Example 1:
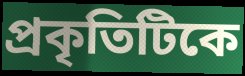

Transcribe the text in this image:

প্রকৃতিটিকে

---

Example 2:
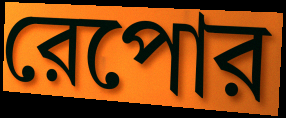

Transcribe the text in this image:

রেপোর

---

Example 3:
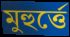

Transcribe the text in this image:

মুহুর্ত্তে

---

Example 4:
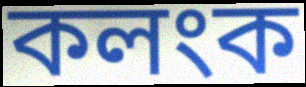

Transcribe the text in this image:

কলংক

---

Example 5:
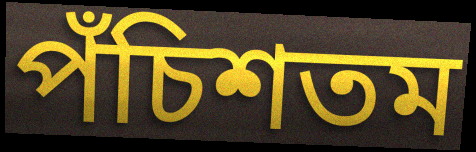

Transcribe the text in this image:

পঁচিশতম